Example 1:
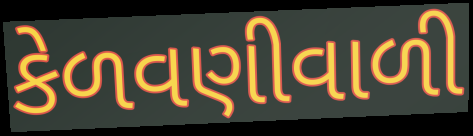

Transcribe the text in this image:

કેળવણીવાળી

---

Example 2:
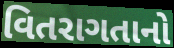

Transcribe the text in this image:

વિતરાગતાનો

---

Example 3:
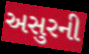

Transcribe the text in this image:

અસુરની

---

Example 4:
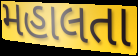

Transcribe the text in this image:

મહાલતા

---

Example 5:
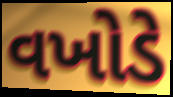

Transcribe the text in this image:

વખોડે